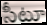
సీటూ